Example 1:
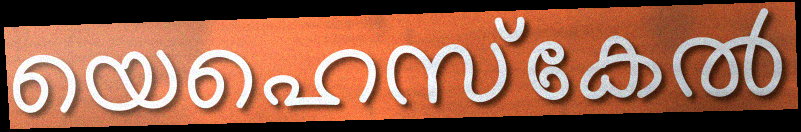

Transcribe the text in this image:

യെഹെസ്കേൽ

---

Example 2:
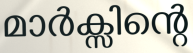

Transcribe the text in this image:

മാർക്സിന്റെ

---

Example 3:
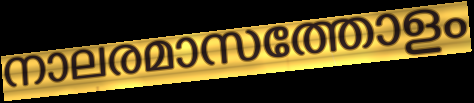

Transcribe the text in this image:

നാലരമാസത്തോളം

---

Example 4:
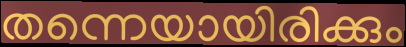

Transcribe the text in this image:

തന്നെയായിരിക്കും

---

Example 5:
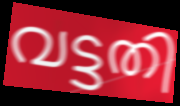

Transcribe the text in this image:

വട്ടതി